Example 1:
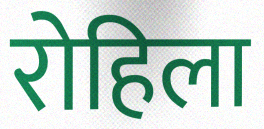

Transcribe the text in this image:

रोहिला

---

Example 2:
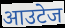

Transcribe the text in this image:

आउटेज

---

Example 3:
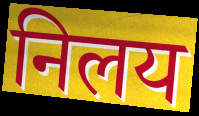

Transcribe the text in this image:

निलय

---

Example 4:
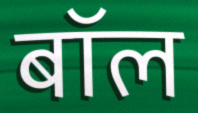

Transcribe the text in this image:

बॉल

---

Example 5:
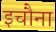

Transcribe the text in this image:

इचौना